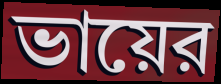
ভায়ের